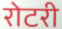
रोटरी